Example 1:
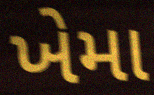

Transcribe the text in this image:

ખેમા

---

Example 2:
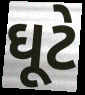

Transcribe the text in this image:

ઘૂટે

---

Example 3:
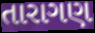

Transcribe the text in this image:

તારાગણ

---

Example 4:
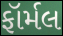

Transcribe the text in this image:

ફૉર્મલ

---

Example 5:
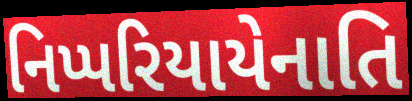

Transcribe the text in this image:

નિપ્પરિયાયેનાતિ